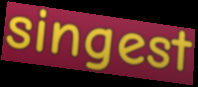
singest